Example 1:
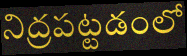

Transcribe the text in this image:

నిద్రపట్టడంలో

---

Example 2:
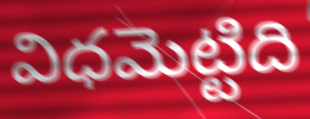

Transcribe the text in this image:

విధమెట్టిది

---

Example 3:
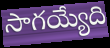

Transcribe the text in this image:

సాగయ్యేది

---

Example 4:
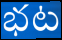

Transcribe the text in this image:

భట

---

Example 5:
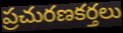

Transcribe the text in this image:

ప్రచురణకర్తలు